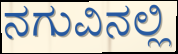
ನಗುವಿನಲ್ಲಿ